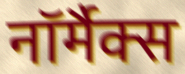
नॉर्मैक्स